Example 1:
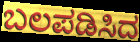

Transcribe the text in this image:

ಬಲಪಡಿಸಿದ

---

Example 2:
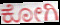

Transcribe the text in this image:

ಕೋಗಿ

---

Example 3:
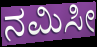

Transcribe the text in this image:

ನಮಿಸೀ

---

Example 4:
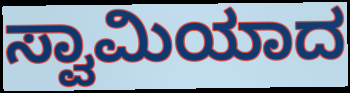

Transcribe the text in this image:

ಸ್ವಾಮಿಯಾದ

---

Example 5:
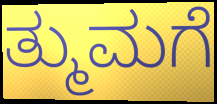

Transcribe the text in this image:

ತ್ಮುಮಗೆ